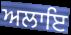
ਅਲਾਇ